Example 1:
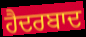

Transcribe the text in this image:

ਹੈਦਰਬਾਦ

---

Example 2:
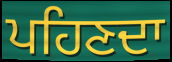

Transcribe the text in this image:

ਪਹਿਣਦਾ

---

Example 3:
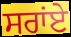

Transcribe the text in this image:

ਸਰਾਂਏ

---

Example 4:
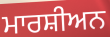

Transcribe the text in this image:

ਮਾਰਸ਼ੀਅਨ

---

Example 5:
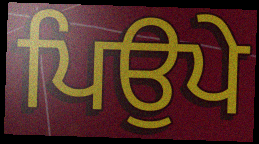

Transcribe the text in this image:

ਪਿਉਪੇ